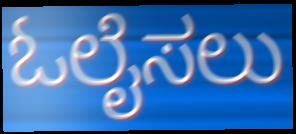
ಓಲೈಸಲು